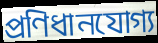
প্ৰণিধানযোগ্য